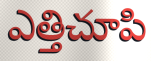
ఎత్తిచూపి